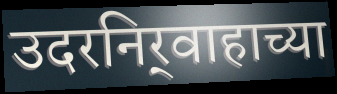
उदरनिर्वाहाच्या